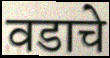
वडाचे